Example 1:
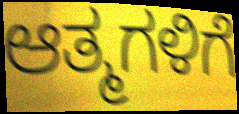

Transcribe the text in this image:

ಆತ್ಮಗಳಿಗೆ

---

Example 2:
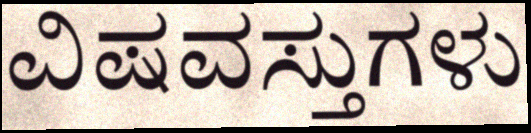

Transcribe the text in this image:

ವಿಷವಸ್ತುಗಳು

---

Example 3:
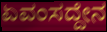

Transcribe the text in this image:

ಏವಂಸದ್ದೇನ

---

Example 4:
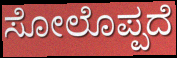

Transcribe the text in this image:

ಸೋಲೊಪ್ಪದೆ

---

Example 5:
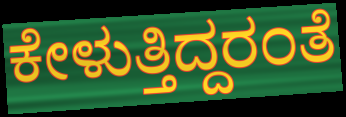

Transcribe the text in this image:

ಕೇಳುತ್ತಿದ್ದರಂತೆ